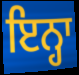
ਇਨ੍ਹਾ